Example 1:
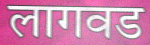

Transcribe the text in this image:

लागवड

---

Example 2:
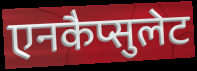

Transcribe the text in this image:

एनकैप्सुलेट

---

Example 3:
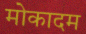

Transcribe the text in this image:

मोकादम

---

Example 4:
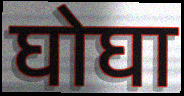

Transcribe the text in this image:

घोघा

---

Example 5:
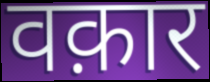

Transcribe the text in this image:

वक़ार